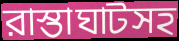
রাস্তাঘাটসহ